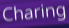
Charing